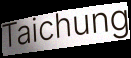
Taichung